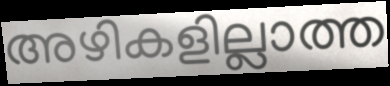
അഴികളില്ലാത്ത